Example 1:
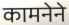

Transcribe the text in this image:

कामनेने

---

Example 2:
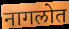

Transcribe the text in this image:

नागलोत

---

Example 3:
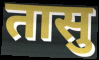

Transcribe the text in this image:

तासु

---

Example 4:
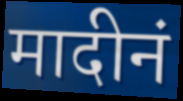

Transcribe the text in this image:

मादीनं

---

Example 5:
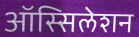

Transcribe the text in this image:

ऑस्सिलेशन